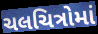
ચલચિત્રોમાં